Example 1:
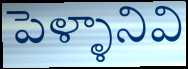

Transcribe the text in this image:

పెళ్ళానివి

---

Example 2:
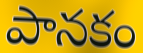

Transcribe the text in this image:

పానకం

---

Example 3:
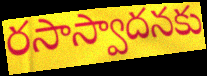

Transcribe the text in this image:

రసాస్వాదనకు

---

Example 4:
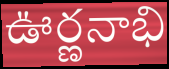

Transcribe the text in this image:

ఊర్ణనాభి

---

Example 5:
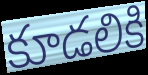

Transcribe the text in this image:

కూడలికి